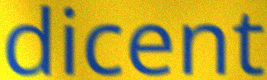
dicent